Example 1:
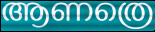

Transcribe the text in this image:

ആണത്രെ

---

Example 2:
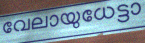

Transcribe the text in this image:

വേലായുധേട്ടാ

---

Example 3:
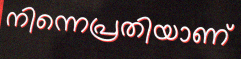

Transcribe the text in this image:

നിന്നെപ്രതിയാണ്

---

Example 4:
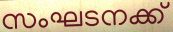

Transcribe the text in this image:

സംഘടനക്ക്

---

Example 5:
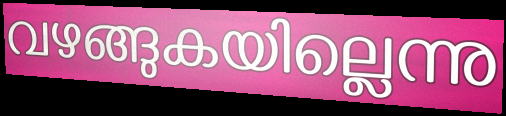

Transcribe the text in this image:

വഴങ്ങുകയില്ലെന്നു